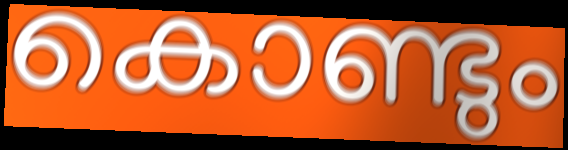
കൊണ്ടും